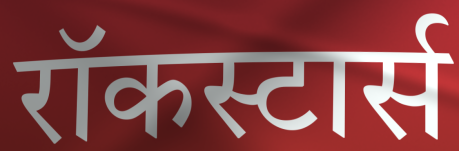
रॉकस्टार्स